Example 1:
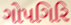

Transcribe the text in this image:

ગોપગિરિ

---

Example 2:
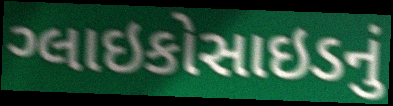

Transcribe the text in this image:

ગ્લાઇકોસાઇડનું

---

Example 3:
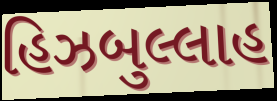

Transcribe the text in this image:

હિઝબુલ્લાહ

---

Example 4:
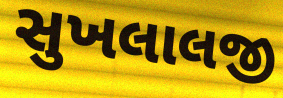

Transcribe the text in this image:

સુખલાલજી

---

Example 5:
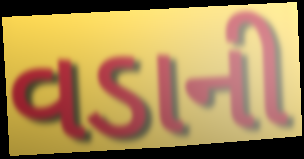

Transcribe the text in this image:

વડાની